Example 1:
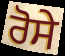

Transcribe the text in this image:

ਰੋਸੇ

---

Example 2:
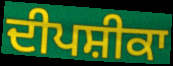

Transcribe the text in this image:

ਦੀਪਸ਼ੀਕਾ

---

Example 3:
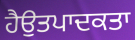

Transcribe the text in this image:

ਹੈਉਤਪਾਦਕਤਾ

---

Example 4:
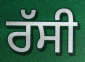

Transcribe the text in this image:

ਰੱਸੀ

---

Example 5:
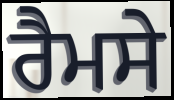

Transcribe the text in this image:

ਰੈਮਸੇ